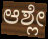
ಆಶ್ಲೇ